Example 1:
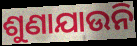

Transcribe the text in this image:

ଶୁଣାଯାଉନି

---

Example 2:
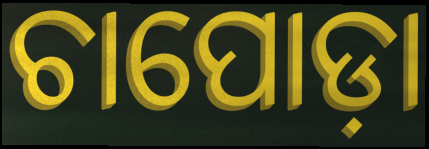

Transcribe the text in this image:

ଚାପୋଡ଼ା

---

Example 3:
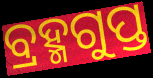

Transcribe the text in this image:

ବ୍ରହ୍ମଗୁପ୍ତ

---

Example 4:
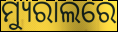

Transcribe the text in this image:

ମ୍ୟୁରାଲରେ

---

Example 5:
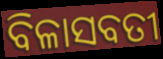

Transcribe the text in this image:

ବିଳାସବତୀ